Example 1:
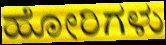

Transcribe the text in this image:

ಹೋರಿಗಳು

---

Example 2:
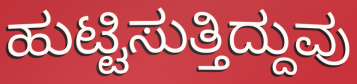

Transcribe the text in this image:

ಹುಟ್ಟಿಸುತ್ತಿದ್ದುವು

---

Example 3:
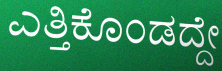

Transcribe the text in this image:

ಎತ್ತಿಕೊಂಡದ್ದೇ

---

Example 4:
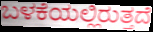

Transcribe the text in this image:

ಬಳಕೆಯಲ್ಲಿರುತ್ತದೆ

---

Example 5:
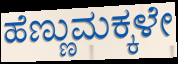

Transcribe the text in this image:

ಹೆಣ್ಣುಮಕ್ಕಳೇ